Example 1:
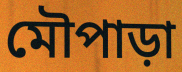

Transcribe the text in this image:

মৌপাড়া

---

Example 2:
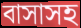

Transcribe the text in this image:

বাসাসহ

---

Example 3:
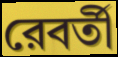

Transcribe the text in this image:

রেবর্তী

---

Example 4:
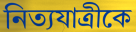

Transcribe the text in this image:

নিত্যযাত্রীকে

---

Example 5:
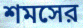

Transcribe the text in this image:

শমসের